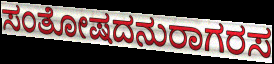
ಸಂತೋಷದನುರಾಗರಸ